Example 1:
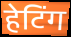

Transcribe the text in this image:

हेटिंग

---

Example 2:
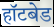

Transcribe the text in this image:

हॉटबेड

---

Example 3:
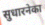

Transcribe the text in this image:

सुधारनेका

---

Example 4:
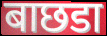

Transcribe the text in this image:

बाछडा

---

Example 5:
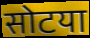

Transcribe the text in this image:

सोटया